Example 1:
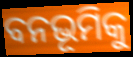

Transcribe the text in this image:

ବନଭୂମିକୁ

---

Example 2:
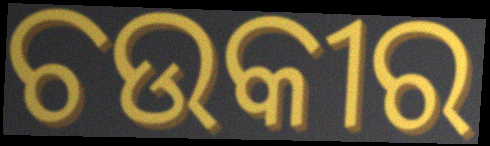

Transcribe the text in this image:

ଚଉକୀର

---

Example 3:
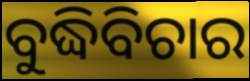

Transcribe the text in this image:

ବୁଦ୍ଧିବିଚାର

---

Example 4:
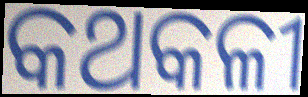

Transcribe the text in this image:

କଥକଳୀ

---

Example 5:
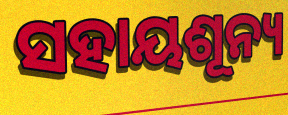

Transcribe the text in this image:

ସହାୟଶୂନ୍ୟ